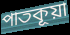
পাতকূয়া